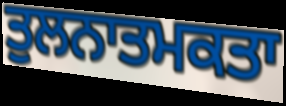
ਤੁਲਨਾਤਮਕਤਾ